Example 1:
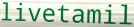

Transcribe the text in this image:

livetamil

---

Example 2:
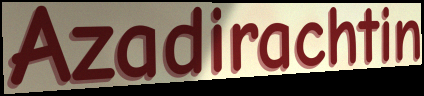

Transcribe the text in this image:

Azadirachtin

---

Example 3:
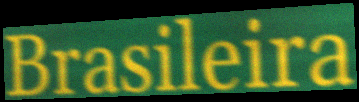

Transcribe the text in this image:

Brasileira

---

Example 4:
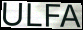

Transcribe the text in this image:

ULFA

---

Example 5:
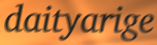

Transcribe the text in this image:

daityarige